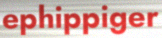
ephippiger